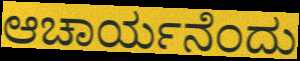
ಆಚಾರ್ಯನೆಂದು